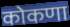
कोकणा